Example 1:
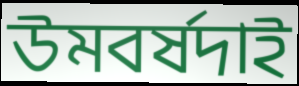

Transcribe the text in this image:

উমবৰ্ষদাই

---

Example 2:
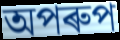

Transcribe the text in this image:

অপৰুপ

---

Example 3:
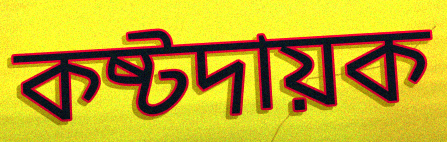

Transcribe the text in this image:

কষ্টদায়ক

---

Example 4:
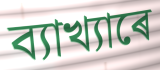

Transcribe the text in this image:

ব্যাখ্যাৰে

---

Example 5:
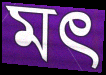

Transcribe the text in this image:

মৎ